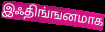
இஃதிங்ஙனமாக